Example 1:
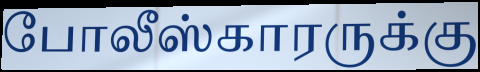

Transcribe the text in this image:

போலீஸ்காரருக்கு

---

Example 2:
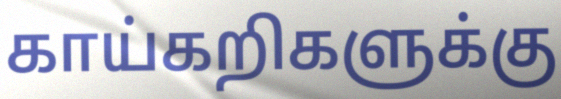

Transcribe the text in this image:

காய்கறிகளுக்கு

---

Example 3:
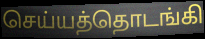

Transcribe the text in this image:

செய்யத்தொடங்கி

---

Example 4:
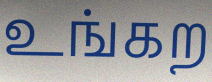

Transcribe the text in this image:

உங்கற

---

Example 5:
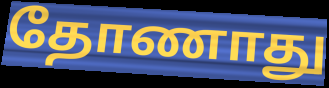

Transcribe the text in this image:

தோணாது